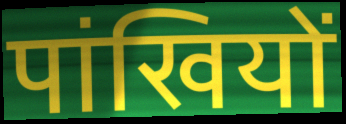
पांखियों